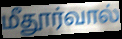
மீதூர்வால்